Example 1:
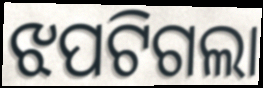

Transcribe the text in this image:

ଝପଟିଗଲା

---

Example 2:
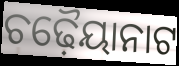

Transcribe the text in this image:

ଚଢ଼ୈୟାନାଟ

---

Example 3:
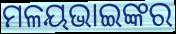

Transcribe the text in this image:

ମଳୟଭାଇଙ୍କର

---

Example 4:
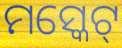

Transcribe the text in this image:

ମସ୍କେଟ୍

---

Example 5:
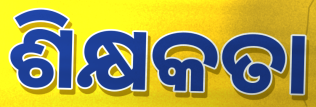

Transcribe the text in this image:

ଶିକ୍ଷକତା